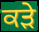
ਕੜੇ